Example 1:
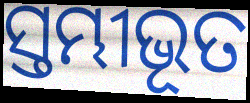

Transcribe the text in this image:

ସ୍ତମ୍ଭୀଭୂତ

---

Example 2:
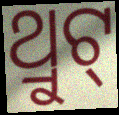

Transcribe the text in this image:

ଥ୍ରୁଟ୍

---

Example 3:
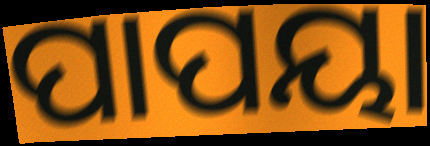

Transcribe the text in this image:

ପାପୟା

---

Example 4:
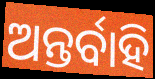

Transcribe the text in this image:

ଅନ୍ତର୍ବାହି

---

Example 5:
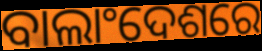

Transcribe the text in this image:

ବାଲାଂଦେଶରେ